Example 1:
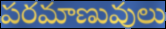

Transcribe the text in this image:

పరమాణువులు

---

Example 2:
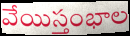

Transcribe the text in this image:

వేయిస్తంభాల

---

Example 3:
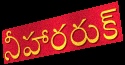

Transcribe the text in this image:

నీహారరుక్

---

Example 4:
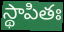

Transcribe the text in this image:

స్థాపితః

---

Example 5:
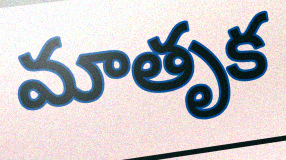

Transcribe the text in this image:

మాతృక